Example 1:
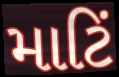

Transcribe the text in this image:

માટિં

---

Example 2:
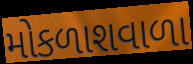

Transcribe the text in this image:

મોકળાશવાળા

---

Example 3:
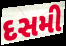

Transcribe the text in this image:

દસમી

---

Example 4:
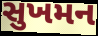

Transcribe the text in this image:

સુખમન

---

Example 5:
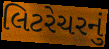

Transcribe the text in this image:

લિટરેચરનું